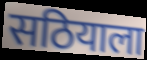
सठियाला